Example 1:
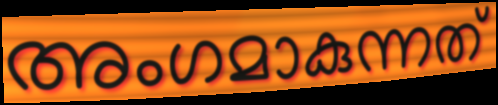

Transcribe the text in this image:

അംഗമാകുന്നത്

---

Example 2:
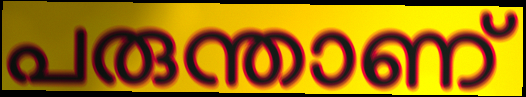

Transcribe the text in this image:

പരുന്താണ്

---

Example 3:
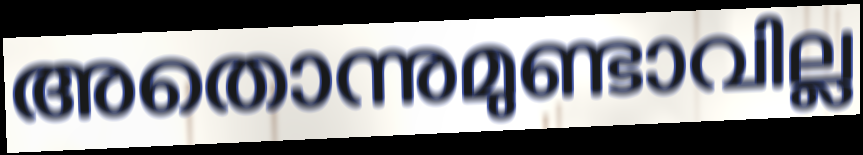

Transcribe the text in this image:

അതൊന്നുമുണ്ടാവില്ല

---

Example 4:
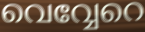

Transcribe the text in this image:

വെവ്വേറെ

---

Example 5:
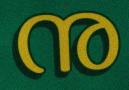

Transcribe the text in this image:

നു